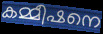
കമ്മീഷനെ